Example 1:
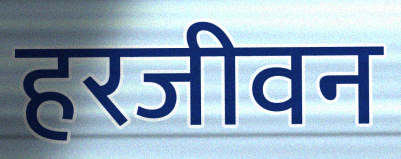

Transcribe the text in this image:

हरजीवन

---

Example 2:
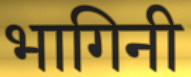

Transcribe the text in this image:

भागिनी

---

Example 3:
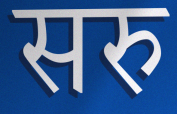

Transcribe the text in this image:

सरु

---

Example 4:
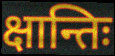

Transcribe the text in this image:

क्षान्तिः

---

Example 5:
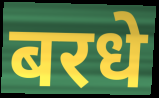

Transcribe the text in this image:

बरधे